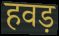
हवड़